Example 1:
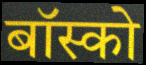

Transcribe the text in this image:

बॉस्को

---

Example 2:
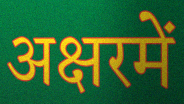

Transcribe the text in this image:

अक्षरमें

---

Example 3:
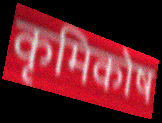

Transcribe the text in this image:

कृमिकोष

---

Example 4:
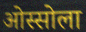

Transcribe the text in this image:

ओस्सोला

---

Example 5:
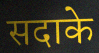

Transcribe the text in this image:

सदाके